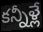
కన్నీళ్లే